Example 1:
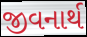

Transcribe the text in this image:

જીવનાર્થ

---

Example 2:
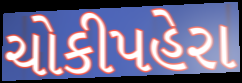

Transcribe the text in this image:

ચોકીપહેરા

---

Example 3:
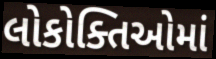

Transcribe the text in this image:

લોકોક્તિઓમાં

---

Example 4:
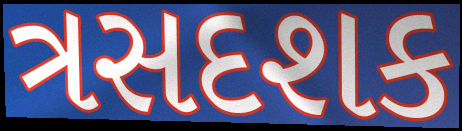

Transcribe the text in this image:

ત્રસદશક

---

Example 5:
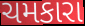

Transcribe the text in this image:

ચમકારા